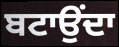
ਬਟਾਉਂਦਾ